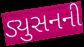
ડ્યુસનની